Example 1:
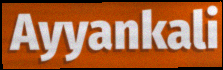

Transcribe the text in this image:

Ayyankali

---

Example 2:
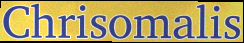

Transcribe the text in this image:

Chrisomalis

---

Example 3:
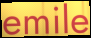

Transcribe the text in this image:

emile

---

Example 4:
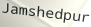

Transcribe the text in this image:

Jamshedpur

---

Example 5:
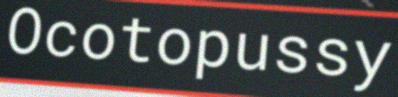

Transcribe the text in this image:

Ocotopussy